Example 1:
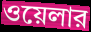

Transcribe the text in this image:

ওয়েলার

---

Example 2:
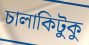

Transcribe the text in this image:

চালাকিটুকু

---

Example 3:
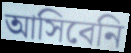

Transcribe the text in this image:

আসিবেনি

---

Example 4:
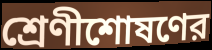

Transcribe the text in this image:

শ্রেণীশোষণের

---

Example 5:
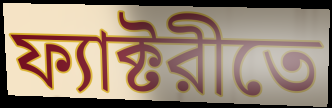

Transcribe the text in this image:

ফ্যাক্টরীতে